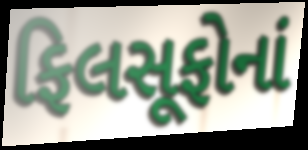
ફિલસૂફોનાં